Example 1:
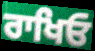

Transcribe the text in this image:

ਰਾਖਿਓ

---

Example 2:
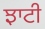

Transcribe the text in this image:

ਝਾਟੀ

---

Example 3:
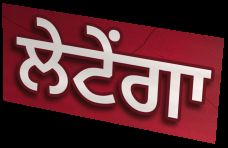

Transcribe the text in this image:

ਲੇਟੇਂਗਾ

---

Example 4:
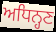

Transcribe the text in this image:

ਅਧਿਨ੍ਹਣ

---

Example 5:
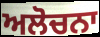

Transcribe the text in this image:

ਅਲੋਚਨਾ